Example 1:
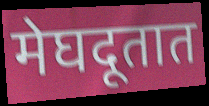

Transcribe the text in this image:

मेघदूतात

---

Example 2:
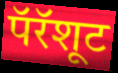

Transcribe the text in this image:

पॅरॅशूट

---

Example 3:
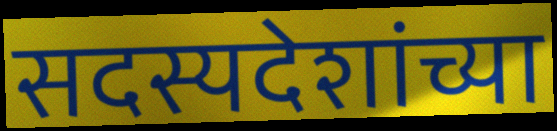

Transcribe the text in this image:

सदस्यदेशांच्या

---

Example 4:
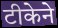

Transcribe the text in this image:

टीकेने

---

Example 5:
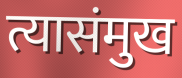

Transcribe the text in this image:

त्यासंमुख